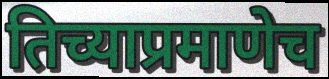
तिच्याप्रमाणेच